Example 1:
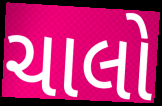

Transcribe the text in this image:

ચાલો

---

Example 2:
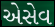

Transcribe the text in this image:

એસેવ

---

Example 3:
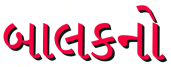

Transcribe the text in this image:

બાલકનો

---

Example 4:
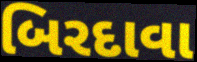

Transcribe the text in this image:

બિરદાવા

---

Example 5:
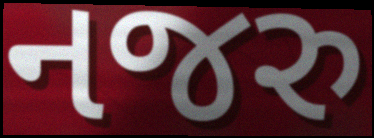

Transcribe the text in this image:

નજરુ